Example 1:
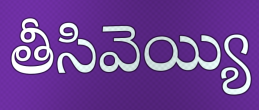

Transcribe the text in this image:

తీసివెయ్యి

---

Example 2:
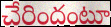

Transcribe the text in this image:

చేరిందంటూ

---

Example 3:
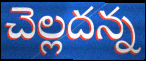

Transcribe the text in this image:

చెల్లదన్న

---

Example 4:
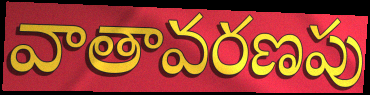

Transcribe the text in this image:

వాతావరణపు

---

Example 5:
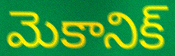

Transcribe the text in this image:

మెకానిక్